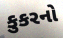
કુકરનો